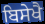
ਬਿਸੇਖੈ